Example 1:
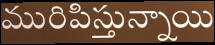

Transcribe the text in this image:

మురిపిస్తున్నాయి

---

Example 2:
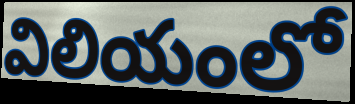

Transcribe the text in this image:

విలియంలో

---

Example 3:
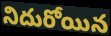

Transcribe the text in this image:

నిదురోయిన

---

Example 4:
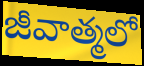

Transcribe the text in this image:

జీవాత్మలో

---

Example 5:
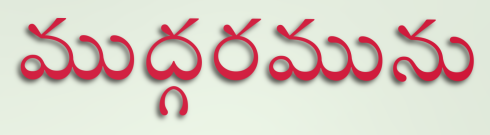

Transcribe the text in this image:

ముద్గరమును